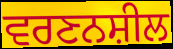
ਵਰਣਨਸ਼ੀਲ